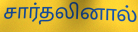
சார்தலினால்